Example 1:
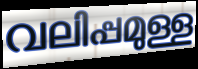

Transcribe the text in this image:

വലിപ്പമുള്ള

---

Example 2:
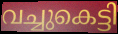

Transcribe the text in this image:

വച്ചുകെട്ടി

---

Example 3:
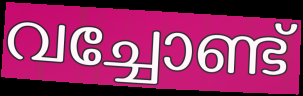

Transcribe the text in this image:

വച്ചോണ്ട്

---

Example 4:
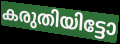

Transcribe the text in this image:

കരുതിയിട്ടോ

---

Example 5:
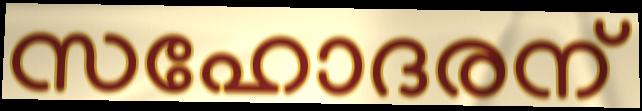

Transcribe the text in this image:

സഹോദരന്